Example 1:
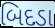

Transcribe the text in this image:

બિદડા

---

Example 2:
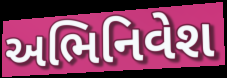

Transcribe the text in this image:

અભિનિવેશ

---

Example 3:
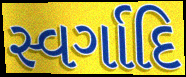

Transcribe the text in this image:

સ્વર્ગાદિ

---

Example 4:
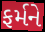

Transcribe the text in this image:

ફર્મને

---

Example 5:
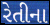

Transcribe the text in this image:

રેતીના